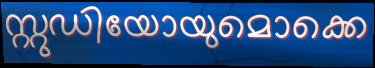
സ്റ്റുഡിയോയുമൊക്കെ